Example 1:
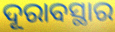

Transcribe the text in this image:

ଦୂରାବସ୍ଥାର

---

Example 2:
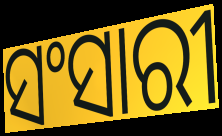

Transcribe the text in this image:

ସଂସାରୀ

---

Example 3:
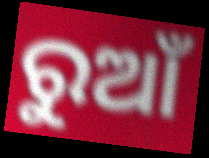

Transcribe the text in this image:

ରୁଆଁ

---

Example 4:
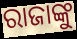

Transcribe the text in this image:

ରାଜାଙ୍କୁ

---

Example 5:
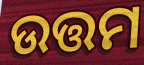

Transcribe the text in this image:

ଉତ୍ତମ